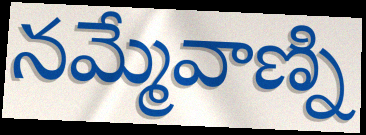
నమ్మేవాణ్ని